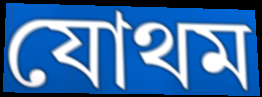
যোথম